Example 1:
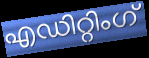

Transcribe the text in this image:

എഡിറ്റിംഗ്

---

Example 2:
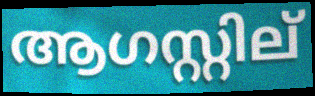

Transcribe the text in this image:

ആഗസ്റ്റില്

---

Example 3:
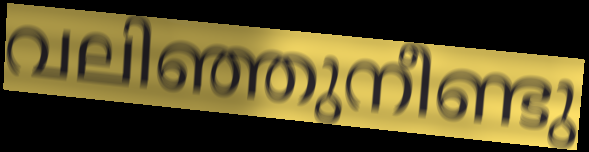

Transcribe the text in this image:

വലിഞ്ഞുനീണ്ടു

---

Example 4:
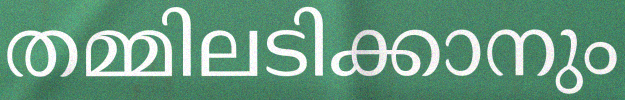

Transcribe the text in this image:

തമ്മിലടിക്കാനും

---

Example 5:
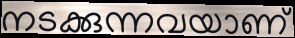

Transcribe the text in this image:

നടക്കുന്നവയാണ്